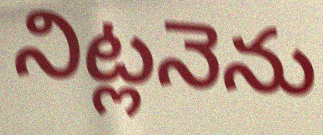
నిట్లనెను